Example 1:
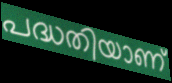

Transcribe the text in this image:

പദ്ധതിയാണ്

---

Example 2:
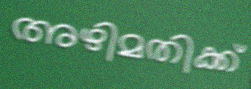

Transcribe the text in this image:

അഴിമതിക്ക്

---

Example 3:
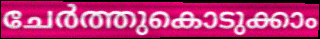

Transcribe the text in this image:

ചേർത്തുകൊടുക്കാം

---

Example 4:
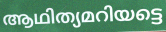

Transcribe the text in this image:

ആഥിത്യമറിയട്ടെ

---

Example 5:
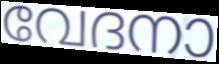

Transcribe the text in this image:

വേദനാ